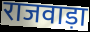
राजवाड़ा